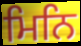
ਮਿਨਿ